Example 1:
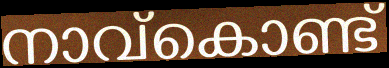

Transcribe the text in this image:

നാവ്കൊണ്ട്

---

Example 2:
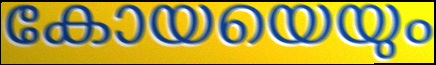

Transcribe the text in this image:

കോയയെയും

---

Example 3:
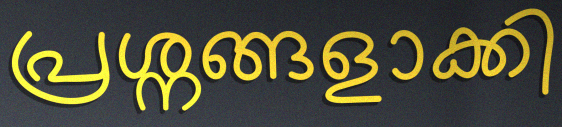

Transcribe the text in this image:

പ്രശ്നങ്ങളാക്കി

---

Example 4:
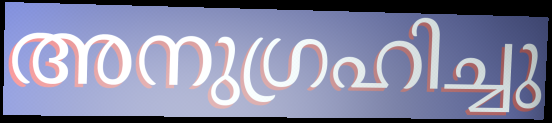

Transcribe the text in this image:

അനുഗ്രഹിച്ചു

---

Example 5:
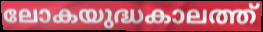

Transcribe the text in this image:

ലോകയുദ്ധകാലത്ത്